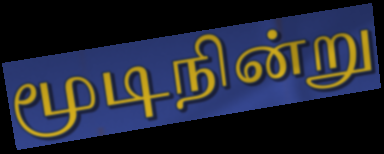
மூடிநின்று